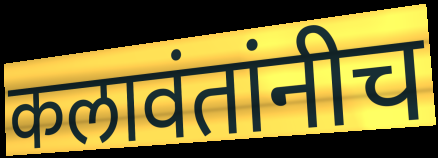
कलावंतांनीच